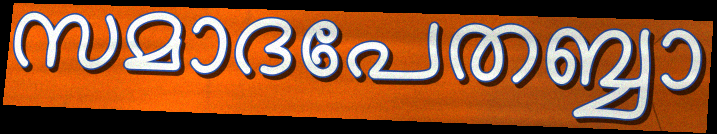
സമാദപേതബ്ബാ